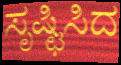
ಸೃಷ್ಟಿಸಿದ